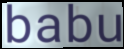
babu